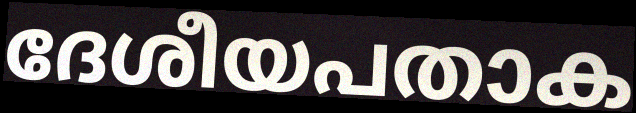
ദേശീയപതാക